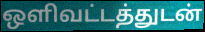
ஒளிவட்டத்துடன்